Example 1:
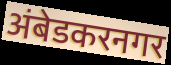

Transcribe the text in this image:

अंबेडकरनगर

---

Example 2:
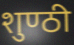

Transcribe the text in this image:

शुण्ठी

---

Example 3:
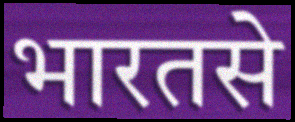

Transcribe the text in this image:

भारतसे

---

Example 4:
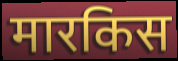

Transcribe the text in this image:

मारकिस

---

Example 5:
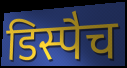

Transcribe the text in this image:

डिस्‍पैच